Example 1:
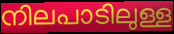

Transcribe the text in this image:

നിലപാടിലുള്ള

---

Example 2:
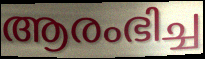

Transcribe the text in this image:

ആരംഭിച്ച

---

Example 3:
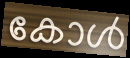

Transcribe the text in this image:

കോൾ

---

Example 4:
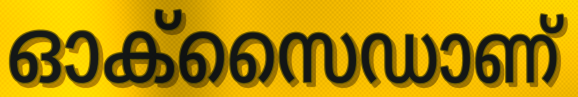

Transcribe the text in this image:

ഓക്സൈഡാണ്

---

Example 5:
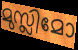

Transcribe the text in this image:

മുസ്ലിമോ